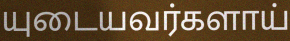
யுடையவர்களாய்